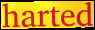
harted